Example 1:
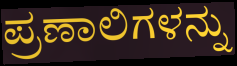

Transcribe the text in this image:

ಪ್ರಣಾಲಿಗಳನ್ನು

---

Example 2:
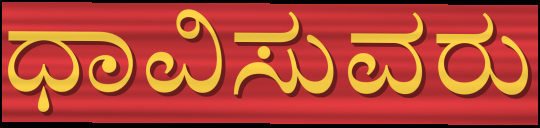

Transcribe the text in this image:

ಧಾವಿಸುವರು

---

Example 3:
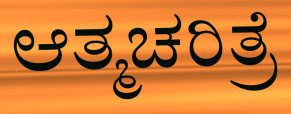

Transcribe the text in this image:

ಆತ್ಮಚರಿತ್ರೆ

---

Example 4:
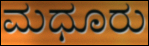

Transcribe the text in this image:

ಮಧೂರು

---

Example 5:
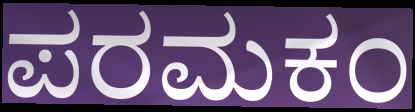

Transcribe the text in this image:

ಪರಮಕಂ